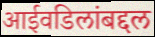
आईवडिलांबद्दल